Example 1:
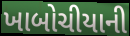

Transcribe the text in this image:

ખાબોચીયાની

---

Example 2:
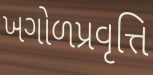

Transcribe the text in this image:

ખગોળપ્રવૃત્તિ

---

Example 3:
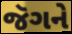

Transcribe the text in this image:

જૅગને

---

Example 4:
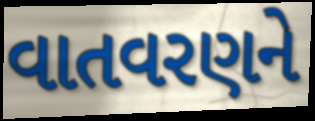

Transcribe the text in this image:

વાતવરણને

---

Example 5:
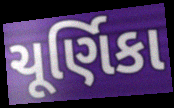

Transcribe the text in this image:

ચૂર્ણિકા